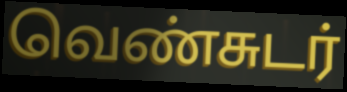
வெண்சுடர்